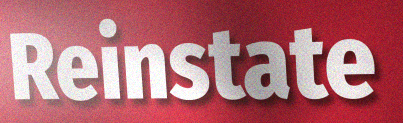
Reinstate